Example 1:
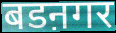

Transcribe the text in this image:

बडऩगर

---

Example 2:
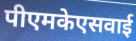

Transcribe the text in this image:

पीएमकेएसवाई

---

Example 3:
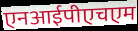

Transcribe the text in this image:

एनआईपीएचएम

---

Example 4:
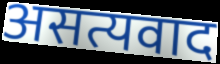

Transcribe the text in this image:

असत्यवाद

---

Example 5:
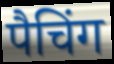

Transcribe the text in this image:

पैचिंग